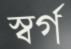
স্বর্গ